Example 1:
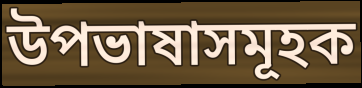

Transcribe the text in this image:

উপভাষাসমূহক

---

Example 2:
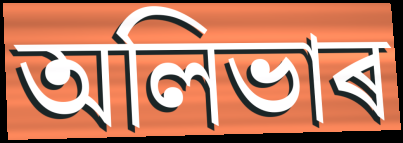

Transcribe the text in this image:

অলিভাৰ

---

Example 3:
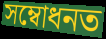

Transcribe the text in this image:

সম্বোধনত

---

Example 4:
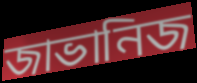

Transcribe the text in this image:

জাভানিজ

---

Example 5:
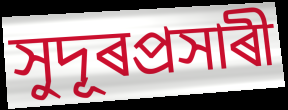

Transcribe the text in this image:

সুদূৰপ্ৰসাৰী